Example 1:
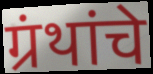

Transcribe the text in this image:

ग्रंथांचे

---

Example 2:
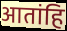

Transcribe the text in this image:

आतांहि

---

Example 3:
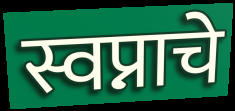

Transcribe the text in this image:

स्वप्नाचे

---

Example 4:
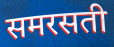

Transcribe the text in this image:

समरसती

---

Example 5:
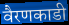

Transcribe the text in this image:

वैरणकाडी